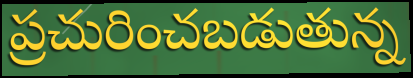
ప్రచురించబడుతున్న